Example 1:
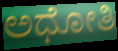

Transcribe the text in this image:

ಅಧೋತಿ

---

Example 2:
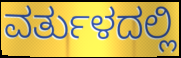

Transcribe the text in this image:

ವರ್ತುಳದಲ್ಲಿ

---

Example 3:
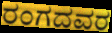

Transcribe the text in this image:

ರಂಗದವರ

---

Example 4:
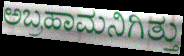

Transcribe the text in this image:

ಅಬ್ರಹಾಮನಿಗಿತ್ತು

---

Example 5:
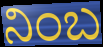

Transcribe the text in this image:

ನಿಂಬ